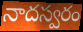
నాదస్వరం